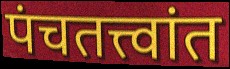
पंचतत्त्वांत